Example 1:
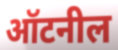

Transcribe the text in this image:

ऑटनील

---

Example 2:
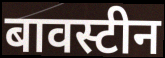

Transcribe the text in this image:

बावस्टीन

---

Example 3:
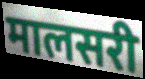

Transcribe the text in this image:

मालसरी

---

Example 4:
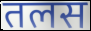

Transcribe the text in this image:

तलस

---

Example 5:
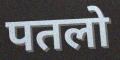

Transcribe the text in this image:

पतलो